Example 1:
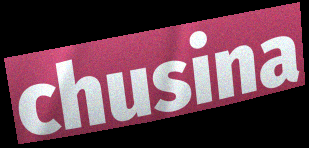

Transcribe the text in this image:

chusina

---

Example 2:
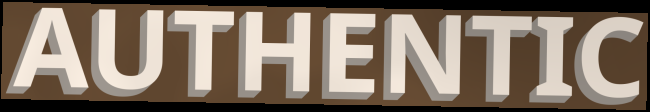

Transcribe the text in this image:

AUTHENTIC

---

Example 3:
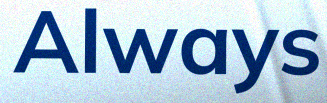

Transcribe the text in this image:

Always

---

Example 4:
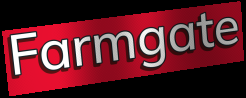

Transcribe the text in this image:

Farmgate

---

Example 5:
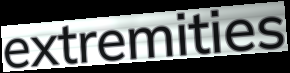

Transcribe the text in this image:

extremities